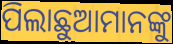
ପିଲାଛୁଆମାନଙ୍କୁ